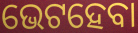
ଭେଟହେବା